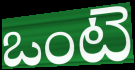
ఒంటె